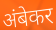
अंबेकर